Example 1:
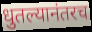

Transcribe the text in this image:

धुतल्यानंतरच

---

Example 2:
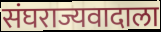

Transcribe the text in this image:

संघराज्यवादाला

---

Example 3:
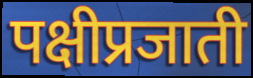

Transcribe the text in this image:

पक्षीप्रजाती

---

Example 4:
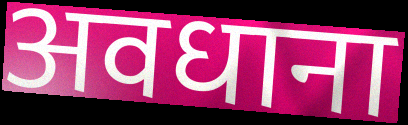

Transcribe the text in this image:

अवधाना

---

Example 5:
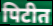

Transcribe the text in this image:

पिटीत